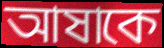
আষাকে